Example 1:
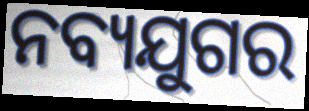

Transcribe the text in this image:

ନବ୍ୟଯୁଗର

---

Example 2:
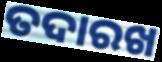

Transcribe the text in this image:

ତଦାରଖ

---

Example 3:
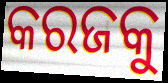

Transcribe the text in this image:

କରଜକୁ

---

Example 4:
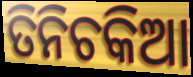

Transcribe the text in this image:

ତିନିଚକିଆ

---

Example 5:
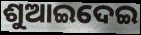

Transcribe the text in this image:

ଶୁଆଇଦେଇ